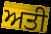
ਅਤੀ